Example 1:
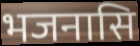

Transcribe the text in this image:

भजनासि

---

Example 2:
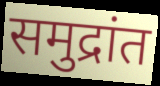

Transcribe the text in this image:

समुद्रांत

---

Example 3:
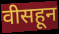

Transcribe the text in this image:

वीसहून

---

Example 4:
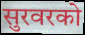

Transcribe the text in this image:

सुरवरको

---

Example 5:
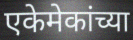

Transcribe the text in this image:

एकेमेकांच्या